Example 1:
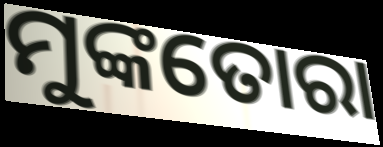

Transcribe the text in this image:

ମୁଙ୍କତୋରା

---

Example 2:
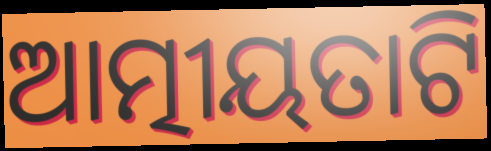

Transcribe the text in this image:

ଆତ୍ମୀୟତାଟି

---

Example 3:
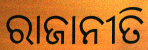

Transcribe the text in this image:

ରାଜାନୀତି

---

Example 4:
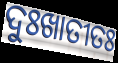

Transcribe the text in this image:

ଦୁଃଖାତୀତଃ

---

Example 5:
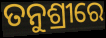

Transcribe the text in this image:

ତନୁଶ୍ରୀରେ